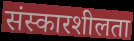
संस्कारशीलता